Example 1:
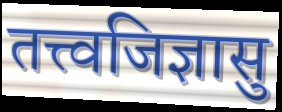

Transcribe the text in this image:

तत्त्वजिज्ञासु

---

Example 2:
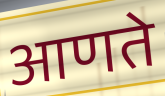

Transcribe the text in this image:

आणते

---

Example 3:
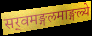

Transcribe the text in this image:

सर्वमङ्गलमाङ्गल्ये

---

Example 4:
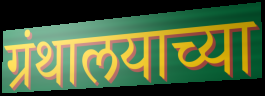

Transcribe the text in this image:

ग्रंथालयाच्या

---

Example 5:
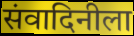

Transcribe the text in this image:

संवादिनीला